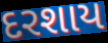
દરશાય